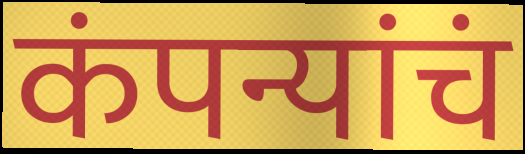
कंपन्यांचं